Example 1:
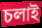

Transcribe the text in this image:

চলাই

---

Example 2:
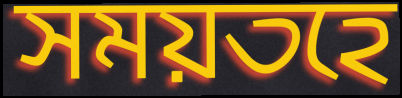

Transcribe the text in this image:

সময়তহে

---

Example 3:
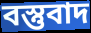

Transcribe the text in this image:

বস্তুবাদ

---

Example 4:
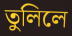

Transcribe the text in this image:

তুলিলে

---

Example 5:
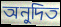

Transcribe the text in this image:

অনুদিত